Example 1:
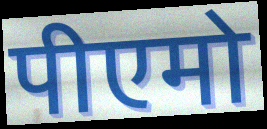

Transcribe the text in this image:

पीएमो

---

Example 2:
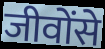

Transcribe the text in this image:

जीवोंसे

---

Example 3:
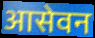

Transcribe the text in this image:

आसेवन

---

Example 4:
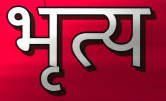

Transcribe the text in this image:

भृत्य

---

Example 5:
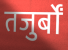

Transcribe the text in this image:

तजुर्बों